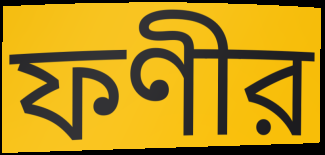
ফণীর